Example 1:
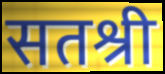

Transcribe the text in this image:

सतश्री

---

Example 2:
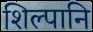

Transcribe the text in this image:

शिल्पानि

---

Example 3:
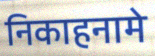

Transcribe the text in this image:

निकाहनामे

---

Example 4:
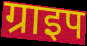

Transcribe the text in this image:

ग्राइप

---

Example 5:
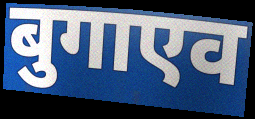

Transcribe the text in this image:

बुगाएव